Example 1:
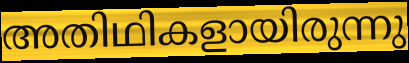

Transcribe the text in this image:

അതിഥികളായിരുന്നു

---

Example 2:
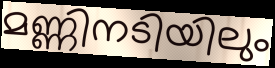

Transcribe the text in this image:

മണ്ണിനടിയിലും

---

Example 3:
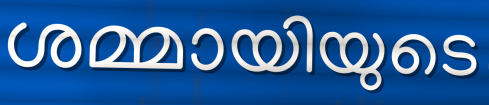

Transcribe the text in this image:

ശമ്മായിയുടെ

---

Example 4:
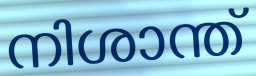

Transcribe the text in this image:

നിശാന്ത്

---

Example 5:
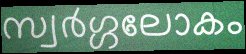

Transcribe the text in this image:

സ്വർഗ്ഗലോകം